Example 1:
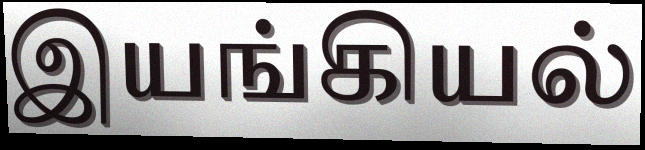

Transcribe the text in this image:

இயங்கியல்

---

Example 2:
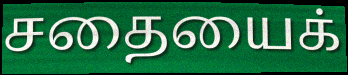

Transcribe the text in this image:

சதையைக்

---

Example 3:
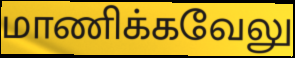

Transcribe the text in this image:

மாணிக்கவேலு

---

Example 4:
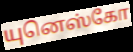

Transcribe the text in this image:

யுனெஸ்கோ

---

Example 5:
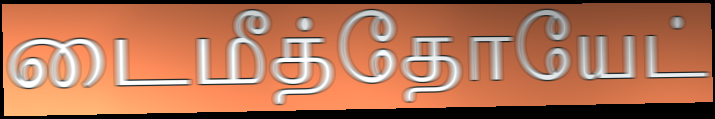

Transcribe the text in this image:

டைமீத்தோயேட்